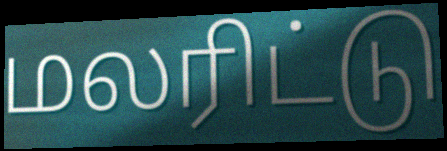
மலரிட்டு